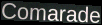
Comarade